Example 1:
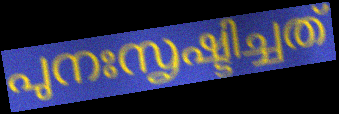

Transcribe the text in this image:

പുനഃസൃഷ്ടിച്ചത്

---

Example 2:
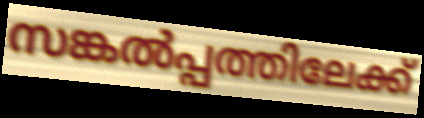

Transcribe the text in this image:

സങ്കൽപ്പത്തിലേക്ക്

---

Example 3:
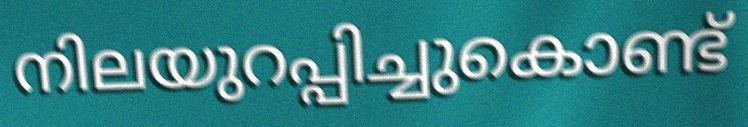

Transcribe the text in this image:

നിലയുറപ്പിച്ചുകൊണ്ട്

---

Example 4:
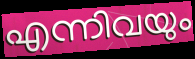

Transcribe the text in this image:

എന്നിവയും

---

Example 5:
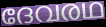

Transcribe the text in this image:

ദേവരഥ